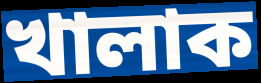
খালাক